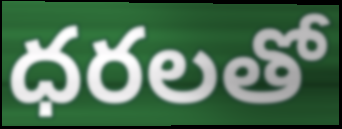
ధరలతో